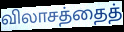
விலாசத்தைத்